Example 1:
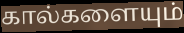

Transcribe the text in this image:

கால்களையும்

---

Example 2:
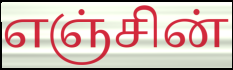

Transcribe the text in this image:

எஞ்சின்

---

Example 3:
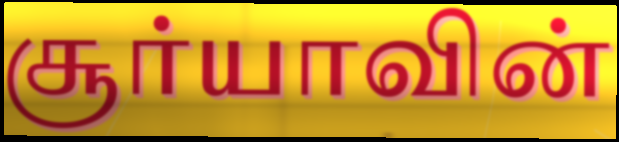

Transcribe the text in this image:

சூர்யாவின்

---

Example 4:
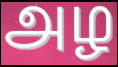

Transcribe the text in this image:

அழ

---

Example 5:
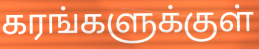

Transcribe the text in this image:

கரங்களுக்குள்